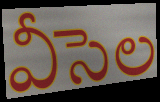
వీసెల